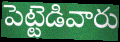
పెట్టెడివారు